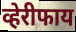
व्हेरीफाय